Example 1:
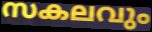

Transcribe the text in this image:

സകലവും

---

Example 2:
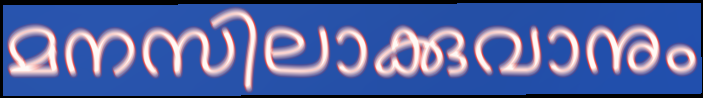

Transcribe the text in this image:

മനസിലാക്കുവാനും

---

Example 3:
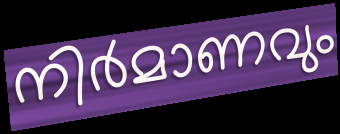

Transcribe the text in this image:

നിർമാണവും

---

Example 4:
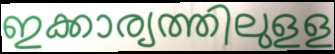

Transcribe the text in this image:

ഇക്കാര്യത്തിലുളള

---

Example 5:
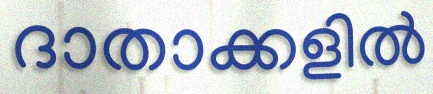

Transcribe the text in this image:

ദാതാക്കളിൽ